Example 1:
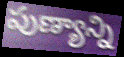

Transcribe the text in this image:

పుణ్యాన్ని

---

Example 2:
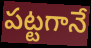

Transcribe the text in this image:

పట్టగానే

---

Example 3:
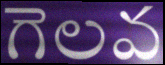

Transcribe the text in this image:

గెలవ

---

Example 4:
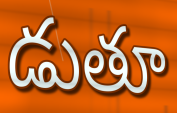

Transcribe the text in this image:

డుతూ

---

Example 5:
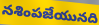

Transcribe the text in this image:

నశింపజేయునది